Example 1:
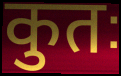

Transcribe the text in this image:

कुतः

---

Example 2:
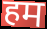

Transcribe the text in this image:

हम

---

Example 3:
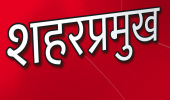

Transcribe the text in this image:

शहरप्रमुख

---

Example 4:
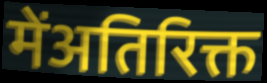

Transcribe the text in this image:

मेंअतिरिक्त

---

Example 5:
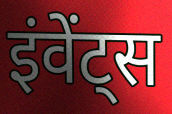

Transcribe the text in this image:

इंवेंट्स